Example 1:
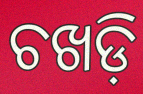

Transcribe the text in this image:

ଚଖଡ଼ି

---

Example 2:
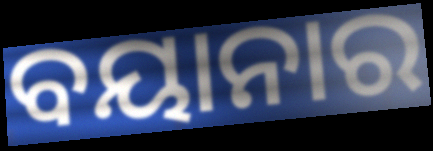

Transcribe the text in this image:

ବୟାନାର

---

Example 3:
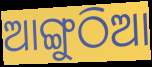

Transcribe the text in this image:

ଆଙ୍ଗୁଠିଆ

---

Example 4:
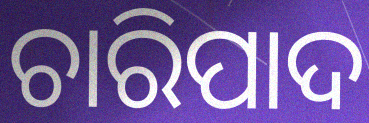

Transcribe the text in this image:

ଚାରିପାଦ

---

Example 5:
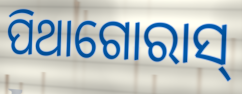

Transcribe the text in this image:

ପିଥାଗୋରାସ୍